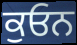
ਕੁਓਨ